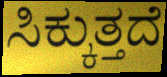
ಸಿಕ್ಕುತ್ತದೆ